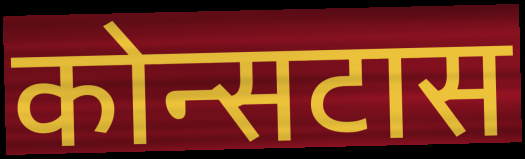
कोन्सटास